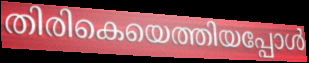
തിരികെയെത്തിയപ്പോൾ